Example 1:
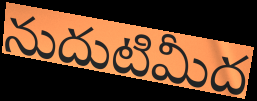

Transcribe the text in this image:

నుదుటిమీద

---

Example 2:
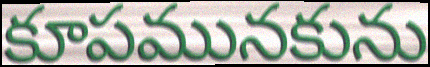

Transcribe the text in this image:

కూపమునకును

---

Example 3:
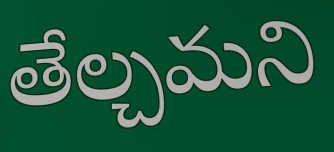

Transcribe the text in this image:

తేల్చమని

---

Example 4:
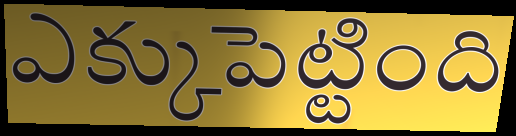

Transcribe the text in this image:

ఎక్కుపెట్టింది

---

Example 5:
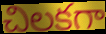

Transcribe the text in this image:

చిలకగా